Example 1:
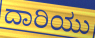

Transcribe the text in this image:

ದಾರಿಯು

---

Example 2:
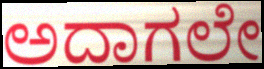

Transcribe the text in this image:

ಅದಾಗಲೇ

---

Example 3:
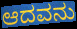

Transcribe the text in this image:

ಆದವನು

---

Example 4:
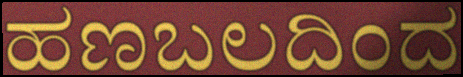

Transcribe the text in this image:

ಹಣಬಲದಿಂದ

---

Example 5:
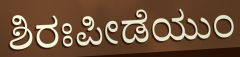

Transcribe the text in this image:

ಶಿರಃಪೀಡೆಯುಂ